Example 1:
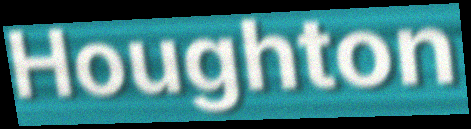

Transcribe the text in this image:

Houghton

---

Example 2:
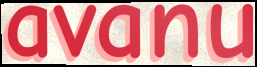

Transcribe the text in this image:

avanu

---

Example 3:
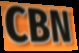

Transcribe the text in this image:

CBN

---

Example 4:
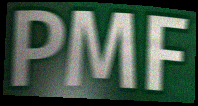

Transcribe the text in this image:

PMF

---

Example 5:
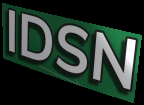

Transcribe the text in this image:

IDSN